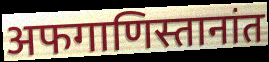
अफगाणिस्तानांत